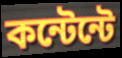
কন্টেন্টে